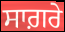
ਸਾਗ਼ਰੇ